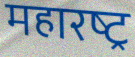
महारष्ट्र